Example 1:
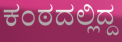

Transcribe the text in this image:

ಕಂಠದಲ್ಲಿದ್ದ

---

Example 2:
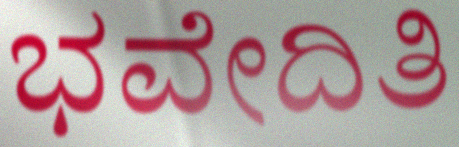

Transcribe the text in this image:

ಭವೇದಿತಿ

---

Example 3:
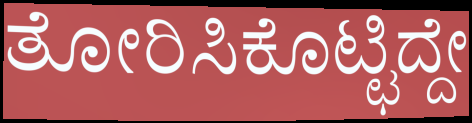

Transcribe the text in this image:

ತೋರಿಸಿಕೊಟ್ಟಿದ್ದೇ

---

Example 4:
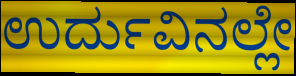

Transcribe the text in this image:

ಉರ್ದುವಿನಲ್ಲೇ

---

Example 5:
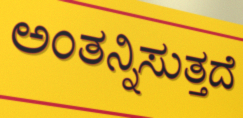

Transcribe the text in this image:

ಅಂತನ್ನಿಸುತ್ತದೆ